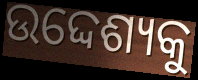
ଉଦ୍ଦେଶ୍ୟକୁ